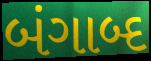
બંગાબ્દ